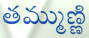
తమ్ముణ్ణి